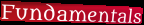
Fundamentals